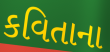
કવિતાના